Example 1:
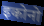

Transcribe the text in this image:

इकोनो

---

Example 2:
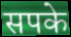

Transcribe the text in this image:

सपके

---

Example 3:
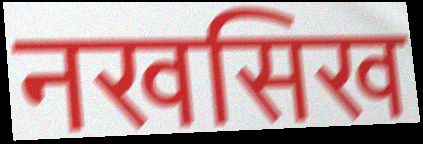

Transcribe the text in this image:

नखसिख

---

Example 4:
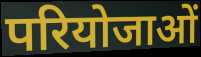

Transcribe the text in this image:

परियोजाओं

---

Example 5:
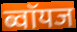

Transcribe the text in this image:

ब्वॉयज